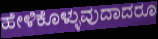
ಹೇಳಿಕೊಳ್ಳುವುದಾದರೂ